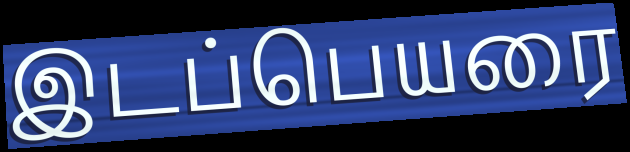
இடப்பெயரை